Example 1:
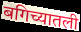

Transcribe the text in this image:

बगिच्यातली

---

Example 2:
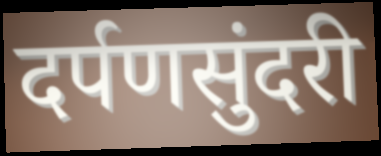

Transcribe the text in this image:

दर्पणसुंदरी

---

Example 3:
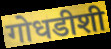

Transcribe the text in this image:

गोधडीशी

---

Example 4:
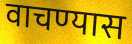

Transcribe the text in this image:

वाचण्यास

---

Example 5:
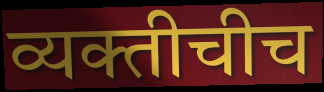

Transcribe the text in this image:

व्यक्तीचीच